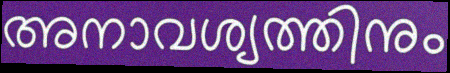
അനാവശ്യത്തിനും